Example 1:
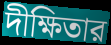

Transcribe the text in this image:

দীক্ষিতার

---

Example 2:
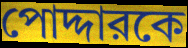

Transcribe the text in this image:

পোদ্দারকে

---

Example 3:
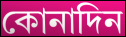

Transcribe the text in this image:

কোনাদিন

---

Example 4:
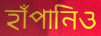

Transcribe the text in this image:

হাঁপানিও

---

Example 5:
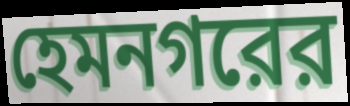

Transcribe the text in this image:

হেমনগরের